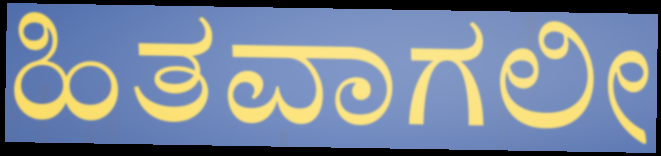
ಹಿತವಾಗಲೀ